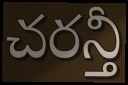
చరన్తీ